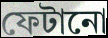
ফেটানো